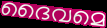
ദൈവമെ